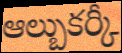
ఆల్బుకర్కీ